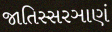
જાતિસ્સરઞાણં